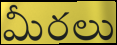
మీరలు